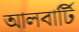
আলবার্টি